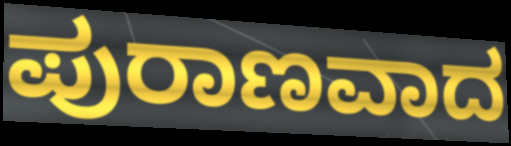
ಪುರಾಣವಾದ